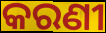
କରଣୀ